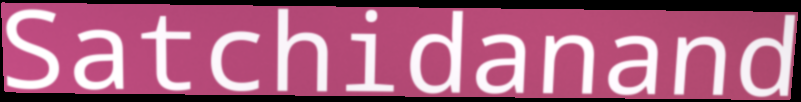
Satchidanand